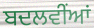
ਬਦਲਵੀਂਆਂ